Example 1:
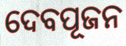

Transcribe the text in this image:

ଦେବପୂଜନ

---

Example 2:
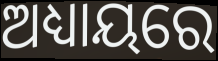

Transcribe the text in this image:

ଅଧ୍ୟାୟରେ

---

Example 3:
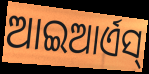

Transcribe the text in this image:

ଆଇଆର୍ଏସ୍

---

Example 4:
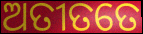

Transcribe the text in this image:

ଅତୀତତେ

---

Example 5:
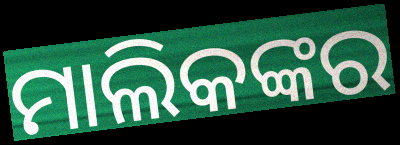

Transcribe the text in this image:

ମାଲିକଙ୍କର